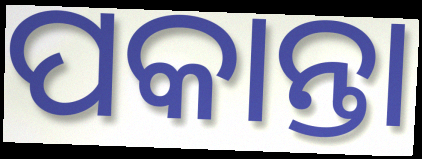
ପକାନ୍ତା